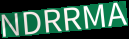
NDRRMA